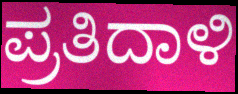
ಪ್ರತಿದಾಳಿ